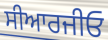
ਸੀਆਰਜੀਓ